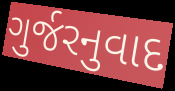
ગુર્જરનુવાદ